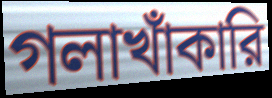
গলাখাঁকারি